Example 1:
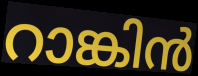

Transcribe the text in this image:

റാങ്കിൻ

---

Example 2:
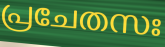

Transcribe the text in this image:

പ്രചേതസഃ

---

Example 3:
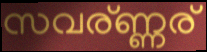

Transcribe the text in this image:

സവര്ണ്ണര്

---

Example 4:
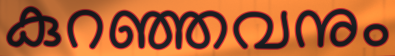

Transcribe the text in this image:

കുറഞ്ഞവനും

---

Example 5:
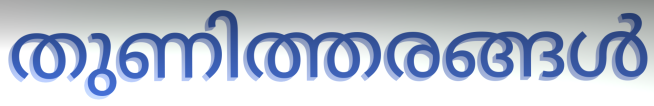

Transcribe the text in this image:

തുണിത്തരങ്ങൾ